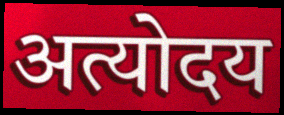
अत्योदय